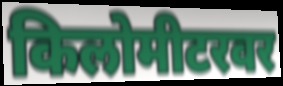
किलोमीटरवर